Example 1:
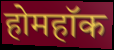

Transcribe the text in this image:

होमहॉक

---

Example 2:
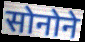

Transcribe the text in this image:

सोनोने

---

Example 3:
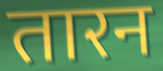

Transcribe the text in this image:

तारन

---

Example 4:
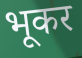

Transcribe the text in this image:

भूकर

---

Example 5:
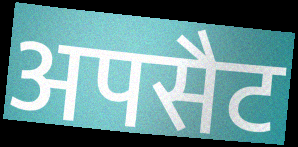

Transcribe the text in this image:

अपसैट